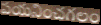
పయనించగలం